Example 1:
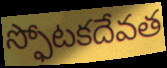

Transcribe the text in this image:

స్ఫోటకదేవత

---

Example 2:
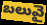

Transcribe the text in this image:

బలువై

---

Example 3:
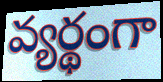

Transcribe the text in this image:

వ్యర్థంగా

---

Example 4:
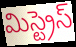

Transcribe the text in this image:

మిస్ట్రెస్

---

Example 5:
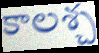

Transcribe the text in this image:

కాలశ్చ